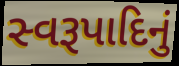
સ્વરૂપાદિનું